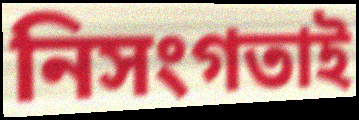
নিসংগতাই